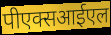
पीएक्सआईएल